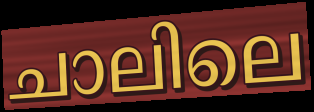
ചാലിലെ